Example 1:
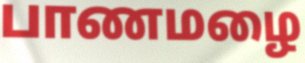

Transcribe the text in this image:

பாணமழை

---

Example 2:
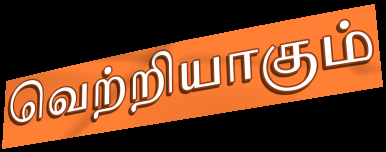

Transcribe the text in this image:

வெற்றியாகும்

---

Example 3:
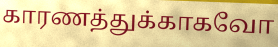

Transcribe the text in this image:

காரணத்துக்காகவோ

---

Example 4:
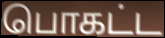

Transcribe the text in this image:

பொகட்ட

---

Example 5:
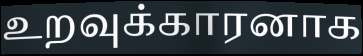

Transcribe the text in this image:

உறவுக்காரனாக